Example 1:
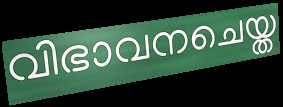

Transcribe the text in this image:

വിഭാവനചെയ്ത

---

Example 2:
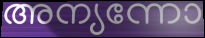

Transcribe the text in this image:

അന്യന്നോ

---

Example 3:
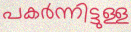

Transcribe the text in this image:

പകർന്നിട്ടുള്ള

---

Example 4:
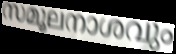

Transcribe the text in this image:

സമൂലനാശവും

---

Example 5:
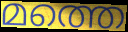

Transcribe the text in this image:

മത്തെ